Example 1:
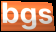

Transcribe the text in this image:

bgs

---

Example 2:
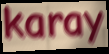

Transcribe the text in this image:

karay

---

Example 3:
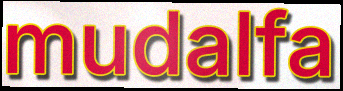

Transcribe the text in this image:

mudalfa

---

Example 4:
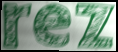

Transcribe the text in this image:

rez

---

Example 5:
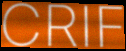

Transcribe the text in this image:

CRIF